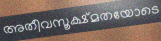
അതീവസൂക്ഷ്മതയോടെ